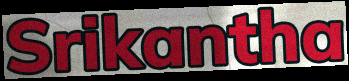
Srikantha